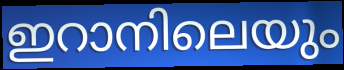
ഇറാനിലെയും